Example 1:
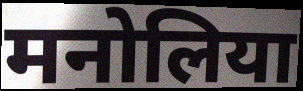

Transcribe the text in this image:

मनोलिया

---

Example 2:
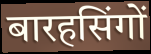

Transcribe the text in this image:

बारहसिंगों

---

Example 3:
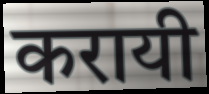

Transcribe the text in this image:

करायी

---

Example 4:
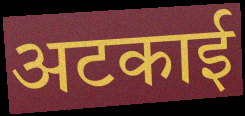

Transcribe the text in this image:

अटकाई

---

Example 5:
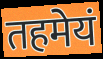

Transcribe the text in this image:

तहमेयं